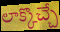
లాక్కొచ్చే